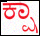
ಕ್ಷಾ